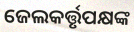
ଜେଲକର୍ତ୍ତୃପକ୍ଷଙ୍କ